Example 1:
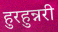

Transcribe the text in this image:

हुरहुन्नरी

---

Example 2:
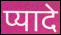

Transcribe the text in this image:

प्यादे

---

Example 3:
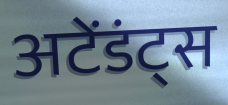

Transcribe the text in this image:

अटेंडंट्स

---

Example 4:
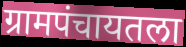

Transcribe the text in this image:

ग्रामपंचायतला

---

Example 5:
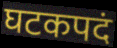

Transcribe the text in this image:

घटकपदं